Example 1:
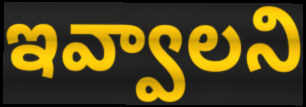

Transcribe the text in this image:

ఇవ్వాలని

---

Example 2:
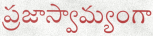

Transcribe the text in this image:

ప్రజాస్వామ్యంగా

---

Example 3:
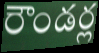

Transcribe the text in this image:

రౌండర్ల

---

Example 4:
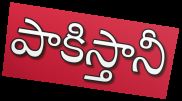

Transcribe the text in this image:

పాకిస్తానీ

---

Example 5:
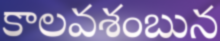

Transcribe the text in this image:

కాలవశంబున